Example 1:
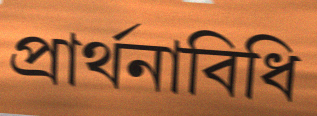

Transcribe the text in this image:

প্রার্থনাবিধি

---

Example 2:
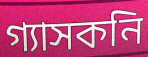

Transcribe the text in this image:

গ্যাসকনি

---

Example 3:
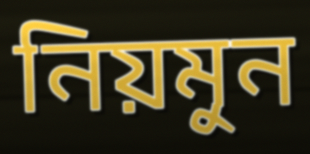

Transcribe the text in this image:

নিয়মুন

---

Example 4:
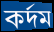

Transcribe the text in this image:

কর্দম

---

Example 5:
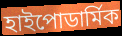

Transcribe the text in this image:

হাইপোডার্মিক